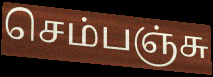
செம்பஞ்சு